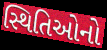
સ્થિતિઓનો